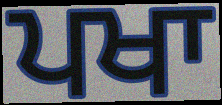
ਪਖਾ